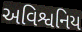
અવિશ્વનિય